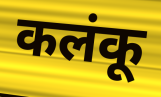
कलंकू